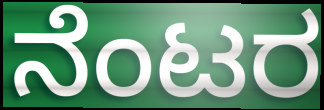
ನೆಂಟರ